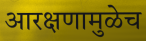
आरक्षणामुळेच